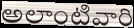
అలాంటివారి